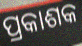
ପ୍ରକାଶକ